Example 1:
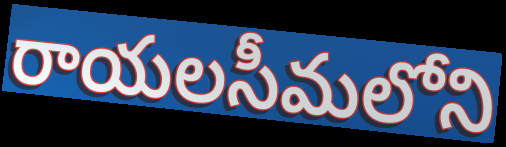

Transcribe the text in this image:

రాయలసీమలోని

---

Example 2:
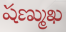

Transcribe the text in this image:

షణ్ముఖ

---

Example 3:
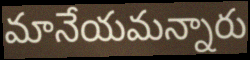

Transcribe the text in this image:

మానేయమన్నారు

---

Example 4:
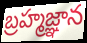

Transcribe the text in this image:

బ్రహ్మజ్ఞాన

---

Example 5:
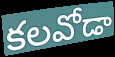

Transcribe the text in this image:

కలవోడా